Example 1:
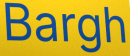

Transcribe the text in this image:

Bargh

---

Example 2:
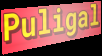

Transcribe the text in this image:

Puligal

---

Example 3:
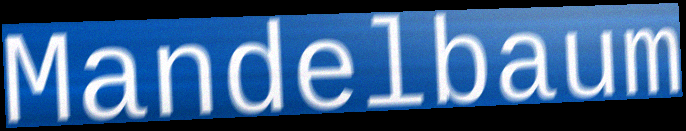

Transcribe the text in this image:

Mandelbaum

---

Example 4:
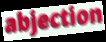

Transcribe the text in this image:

abjection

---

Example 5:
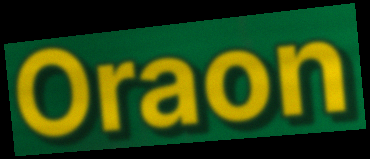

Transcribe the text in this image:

Oraon